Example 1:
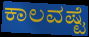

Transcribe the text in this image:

ಕಾಲವಷ್ಟೆ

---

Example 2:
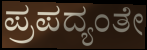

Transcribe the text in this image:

ಪ್ರಪದ್ಯಂತೇ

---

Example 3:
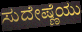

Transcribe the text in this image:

ಸುದೇಷ್ಣೆಯು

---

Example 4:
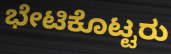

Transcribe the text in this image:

ಭೇಟಿಕೊಟ್ಟರು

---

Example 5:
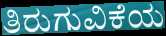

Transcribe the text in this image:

ತಿರುಗುವಿಕೆಯ